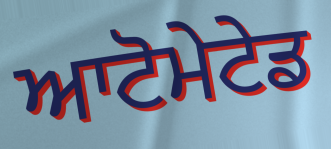
ਆਟੋਮੇਟੇਡ